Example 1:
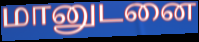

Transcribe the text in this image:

மானுடனை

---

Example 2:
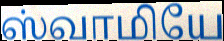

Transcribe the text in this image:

ஸ்வாமியே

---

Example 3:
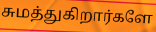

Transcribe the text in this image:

சுமத்துகிறார்களே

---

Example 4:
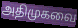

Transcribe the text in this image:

அதிமுகவை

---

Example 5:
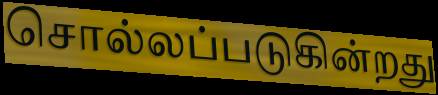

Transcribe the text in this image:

சொல்லப்படுகின்றது